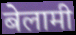
बेलामी